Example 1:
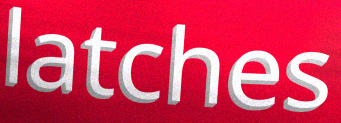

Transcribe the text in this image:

latches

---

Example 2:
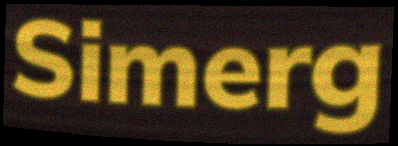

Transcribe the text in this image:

Simerg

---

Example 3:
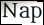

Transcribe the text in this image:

Nap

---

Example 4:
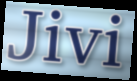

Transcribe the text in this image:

Jivi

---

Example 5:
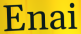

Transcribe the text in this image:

Enai